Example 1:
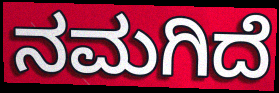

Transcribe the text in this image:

ನಮಗಿದೆ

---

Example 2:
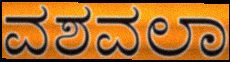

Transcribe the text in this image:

ವಶವಲಾ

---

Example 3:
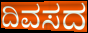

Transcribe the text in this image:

ದಿವಸದ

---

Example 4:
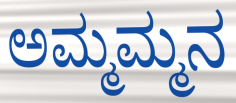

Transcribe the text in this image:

ಅಮ್ಮಮ್ಮನ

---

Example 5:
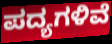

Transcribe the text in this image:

ಪದ್ಯಗಳಿವೆ